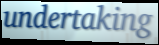
undertaking